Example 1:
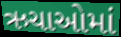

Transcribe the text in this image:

ઋચાઓમાં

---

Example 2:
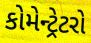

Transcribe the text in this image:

કોમેન્ટ્રેટરો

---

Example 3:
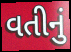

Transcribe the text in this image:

વતીનું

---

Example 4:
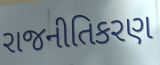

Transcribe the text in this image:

રાજનીતિકરણ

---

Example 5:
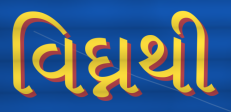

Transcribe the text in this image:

વિઘ્નથી